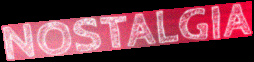
NOSTALGIA